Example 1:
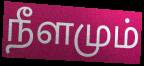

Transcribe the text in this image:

நீளமும்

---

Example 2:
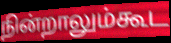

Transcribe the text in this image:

நின்றாலும்கூட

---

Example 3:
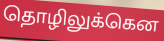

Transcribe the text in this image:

தொழிலுக்கென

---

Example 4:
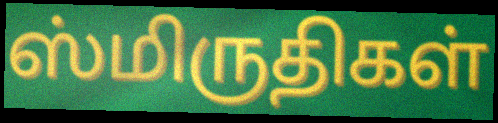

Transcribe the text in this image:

ஸ்மிருதிகள்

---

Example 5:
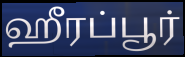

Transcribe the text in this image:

ஹீரப்பூர்